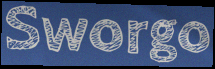
Sworgo